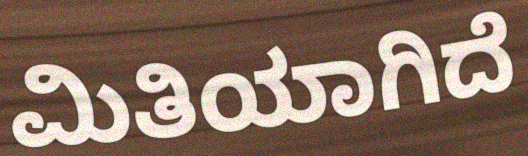
ಮಿತಿಯಾಗಿದೆ